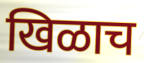
खिळाच